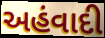
અહંવાદી